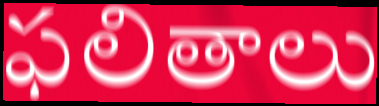
ఫలితాలు